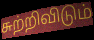
சுற்றிவிடும்